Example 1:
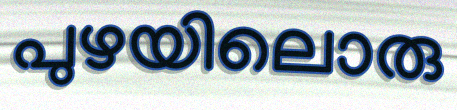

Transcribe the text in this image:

പുഴയിലൊരു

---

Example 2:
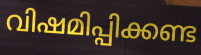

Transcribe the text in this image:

വിഷമിപ്പിക്കണ്ട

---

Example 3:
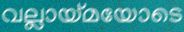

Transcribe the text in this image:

വല്ലായ്മയോടെ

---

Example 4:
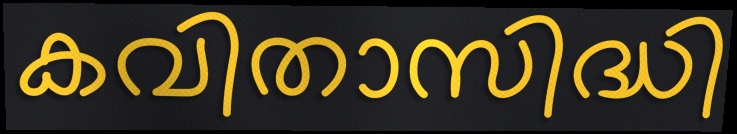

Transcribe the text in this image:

കവിതാസിദ്ധി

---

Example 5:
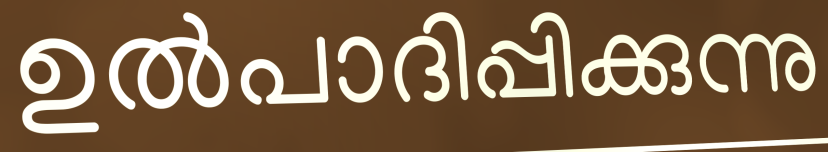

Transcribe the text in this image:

ഉൽപാദിപ്പിക്കുന്നു